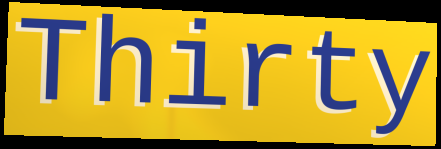
Thirty